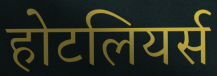
होटलियर्स